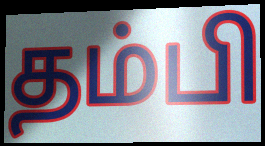
தம்பி